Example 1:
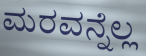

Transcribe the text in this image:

ಮರವನ್ನೆಲ್ಲ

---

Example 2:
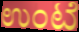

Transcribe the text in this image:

ಉಂಟೆ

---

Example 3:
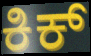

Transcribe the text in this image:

ಕಿಕ್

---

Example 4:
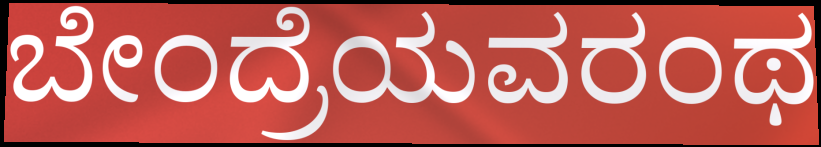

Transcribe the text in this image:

ಬೇಂದ್ರೆಯವರಂಥ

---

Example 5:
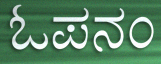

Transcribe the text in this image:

ಓಪನಂ